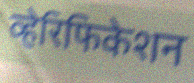
व्हेरिफिकेशन